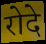
रोदे